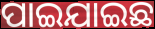
ପାଇଯାଇଛ